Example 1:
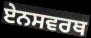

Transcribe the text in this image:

ਏਨਸਵਰਥ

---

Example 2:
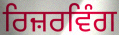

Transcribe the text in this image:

ਰਿਜ਼ਰਵਿੰਗ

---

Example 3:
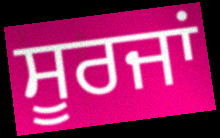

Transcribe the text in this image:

ਸੂਰਜਾਂ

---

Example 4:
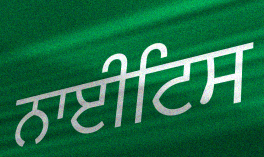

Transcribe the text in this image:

ਨਾਈਟਿਸ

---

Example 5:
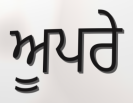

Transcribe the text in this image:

ਅੂਪਰੇ